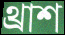
থ্রাশ